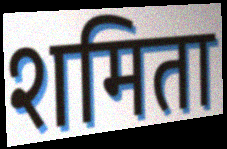
शमिता